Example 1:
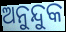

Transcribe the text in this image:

ଅନୁନ୍ଦୁକ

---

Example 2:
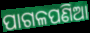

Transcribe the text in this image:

ପାଗଳପଣିଆ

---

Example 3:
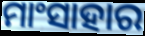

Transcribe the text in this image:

ମାଂସାହାର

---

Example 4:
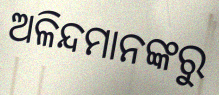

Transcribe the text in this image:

ଅଳିନ୍ଦମାନଙ୍କରୁ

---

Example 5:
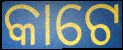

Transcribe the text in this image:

କାଟେ